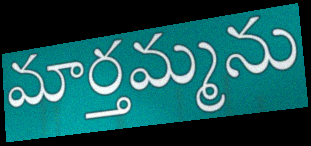
మార్తమ్మను